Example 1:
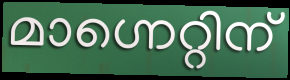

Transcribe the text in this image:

മാഗ്നെറ്റിന്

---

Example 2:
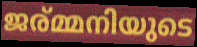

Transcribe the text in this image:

ജര്മ്മനിയുടെ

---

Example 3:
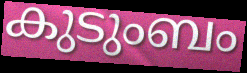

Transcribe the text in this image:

കുടുംബം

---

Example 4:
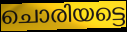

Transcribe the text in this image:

ചൊരിയട്ടെ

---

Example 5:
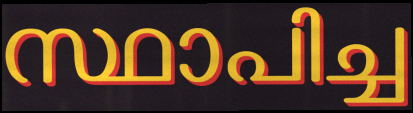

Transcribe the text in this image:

സ്ഥാപിച്ച